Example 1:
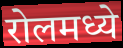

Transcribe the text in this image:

रोलमध्ये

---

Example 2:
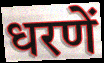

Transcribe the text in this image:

धरणें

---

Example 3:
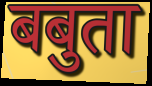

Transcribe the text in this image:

बबुता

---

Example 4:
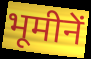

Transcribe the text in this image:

भूमीनें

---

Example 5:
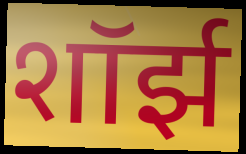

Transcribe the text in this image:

शॉर्झ